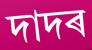
দাদৰ